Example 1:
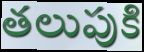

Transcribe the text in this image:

తలుపుకి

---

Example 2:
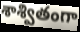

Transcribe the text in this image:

శాశ్వితంగా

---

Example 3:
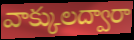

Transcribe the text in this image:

వాక్కులద్వారా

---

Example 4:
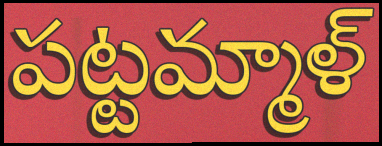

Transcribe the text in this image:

పట్టమ్మాళ్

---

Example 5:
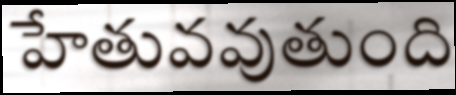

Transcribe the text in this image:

హేతువవుతుంది